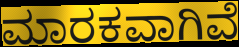
ಮಾರಕವಾಗಿವೆ